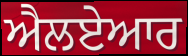
ਐਲਏਆਰ